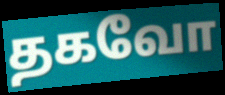
தகவோ